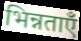
भिन्नताएँ